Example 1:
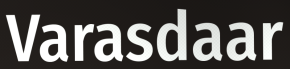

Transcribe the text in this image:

Varasdaar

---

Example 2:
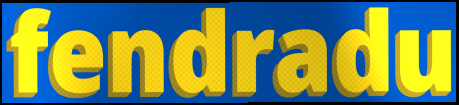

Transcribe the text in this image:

fendradu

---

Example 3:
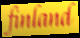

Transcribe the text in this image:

finland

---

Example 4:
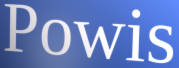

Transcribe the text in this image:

Powis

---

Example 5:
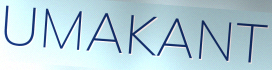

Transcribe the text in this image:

UMAKANT